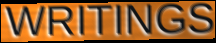
WRITINGS